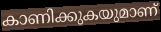
കാണിക്കുകയുമാണ്